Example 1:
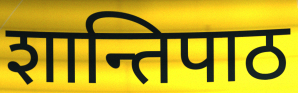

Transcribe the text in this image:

शान्तिपाठ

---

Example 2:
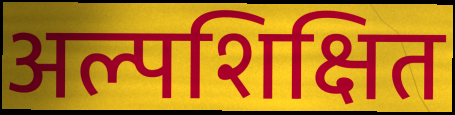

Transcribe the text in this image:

अल्पशिक्षित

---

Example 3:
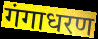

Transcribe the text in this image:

गंगाधरण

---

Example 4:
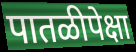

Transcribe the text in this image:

पातळीपेक्षा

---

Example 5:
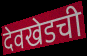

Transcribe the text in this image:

देवखेडची